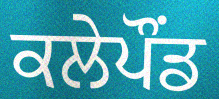
ਕਲੇਪੌਂਡ